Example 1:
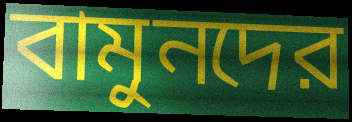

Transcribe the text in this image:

বামুনদের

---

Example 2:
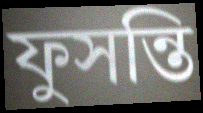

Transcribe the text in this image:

ফুসন্তি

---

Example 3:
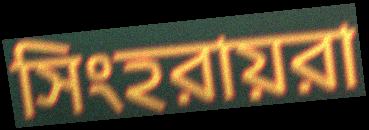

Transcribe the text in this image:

সিংহরায়রা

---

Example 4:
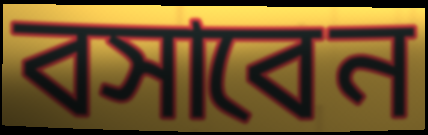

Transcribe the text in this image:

বসাবেন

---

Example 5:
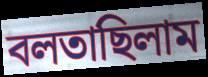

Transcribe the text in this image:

বলতাছিলাম